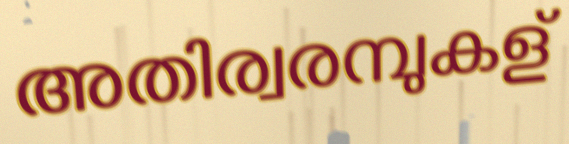
അതിര്വരമ്പുകള്